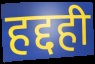
हद्दही